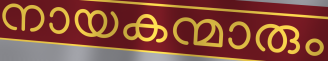
നായകന്മാരും